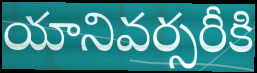
యానివర్సరీకి